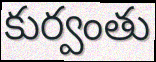
కుర్వంతు